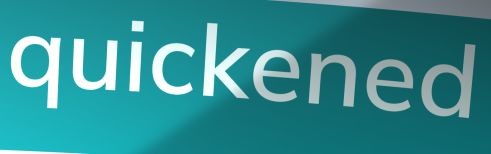
quickened